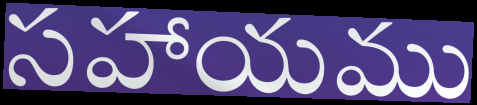
సహాయము